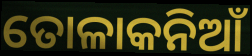
ତୋଳାକନିଆଁ